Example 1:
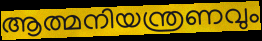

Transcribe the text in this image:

ആത്മനിയന്ത്രണവും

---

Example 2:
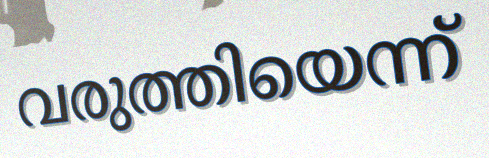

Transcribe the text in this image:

വരുത്തിയെന്ന്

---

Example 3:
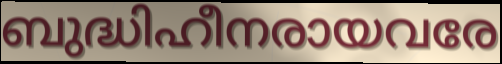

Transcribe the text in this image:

ബുദ്ധിഹീനരായവരേ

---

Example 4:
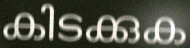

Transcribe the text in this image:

കിടക്കുക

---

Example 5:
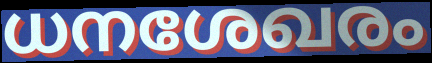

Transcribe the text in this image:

ധനശേഖരം